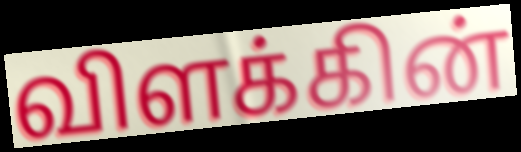
விளக்கின்